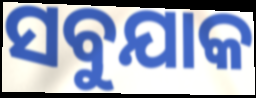
ସବୁଯାକ